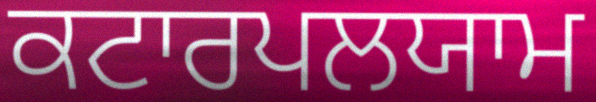
ਕਟਾਰਪਲਯਾਮ